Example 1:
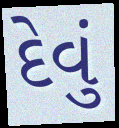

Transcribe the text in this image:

દેવું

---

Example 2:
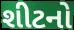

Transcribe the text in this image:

શીટનો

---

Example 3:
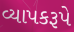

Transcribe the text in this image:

વ્યાપકરૂપે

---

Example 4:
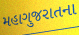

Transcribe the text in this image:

મહાગુજરાતના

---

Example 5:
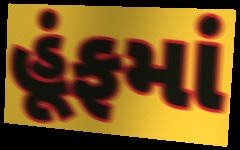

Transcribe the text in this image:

હૂંફમાં